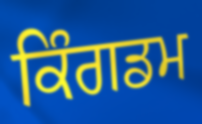
ਕਿੰਗਡਮ